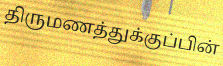
திருமணத்துக்குப்பின்